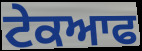
ਟੇਕਆਫ